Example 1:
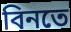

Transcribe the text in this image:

বিনতে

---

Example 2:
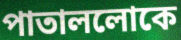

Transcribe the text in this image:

পাতাললোকে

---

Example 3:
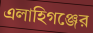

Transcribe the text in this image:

এলাহিগঞ্জের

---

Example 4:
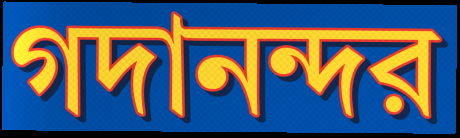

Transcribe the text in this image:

গদানন্দর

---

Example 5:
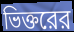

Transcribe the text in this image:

ভিক্তরের